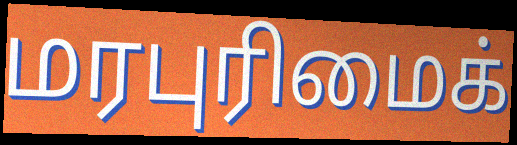
மரபுரிமைக்